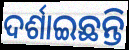
ଦର୍ଶାଇଛନ୍ତି